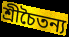
শ্রীচৈতন্য